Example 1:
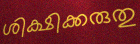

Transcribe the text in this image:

ശിക്ഷിക്കരുതു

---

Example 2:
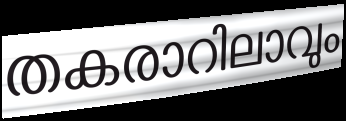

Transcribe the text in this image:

തകരാറിലാവും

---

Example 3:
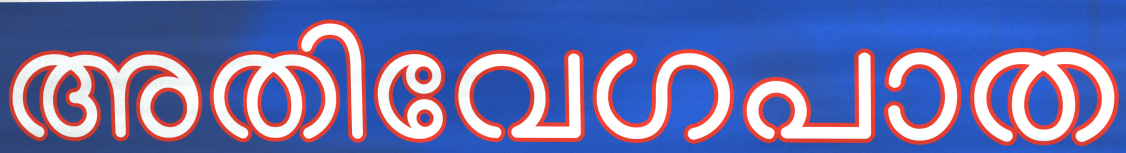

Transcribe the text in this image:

അതിവേഗപാത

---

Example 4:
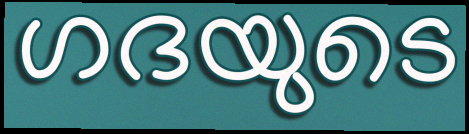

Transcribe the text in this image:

ഗദയുടെ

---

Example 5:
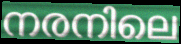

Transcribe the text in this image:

നരനിലെ